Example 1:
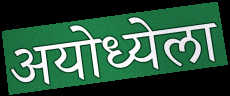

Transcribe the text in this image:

अयोध्येला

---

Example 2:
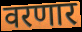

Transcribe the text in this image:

वरणार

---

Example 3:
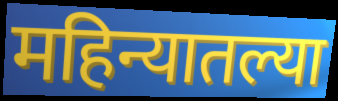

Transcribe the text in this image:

महिन्यातल्या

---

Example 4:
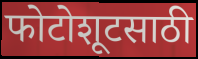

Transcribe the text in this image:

फोटोशूटसाठी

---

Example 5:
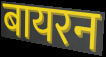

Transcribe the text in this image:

बायरन